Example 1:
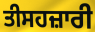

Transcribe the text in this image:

ਤੀਸਹਜ਼ਾਰੀ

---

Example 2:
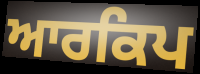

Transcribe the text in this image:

ਆਰਕਿਪ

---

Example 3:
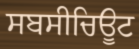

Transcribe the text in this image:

ਸਬਸੀਚਿਊਟ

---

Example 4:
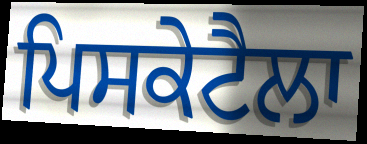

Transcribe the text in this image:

ਪਿਸਕੇਟੈਲਾ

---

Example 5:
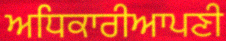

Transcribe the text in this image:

ਅਧਿਕਾਰੀਆਪਣੀ